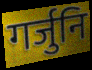
गर्जुनि